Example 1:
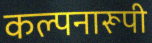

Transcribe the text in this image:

कल्पनारूपी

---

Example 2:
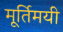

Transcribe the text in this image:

मूर्तिमयी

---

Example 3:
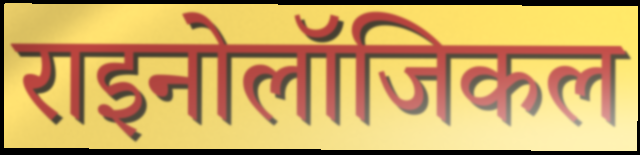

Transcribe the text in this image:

राइनोलॉजिकल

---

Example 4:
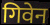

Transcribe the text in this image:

गिवेन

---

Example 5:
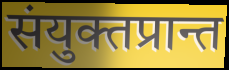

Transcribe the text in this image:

संयुक्तप्रान्त